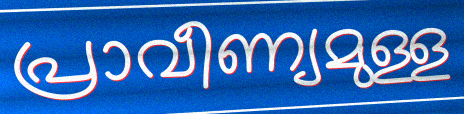
പ്രാവീണ്യമുള്ള